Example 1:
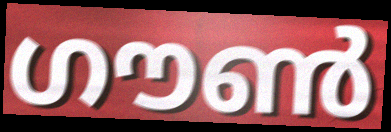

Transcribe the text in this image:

ഗൗൺ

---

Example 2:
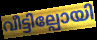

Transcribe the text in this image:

വീട്ടില്പോയി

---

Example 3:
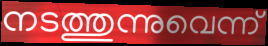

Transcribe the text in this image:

നടത്തുന്നുവെന്ന്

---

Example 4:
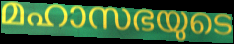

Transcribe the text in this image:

മഹാസഭയുടെ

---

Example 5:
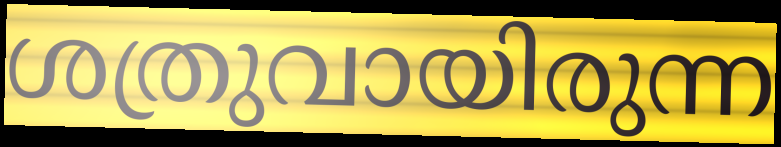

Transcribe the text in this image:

ശത്രുവായിരുന്ന